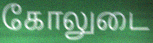
கோலுடை